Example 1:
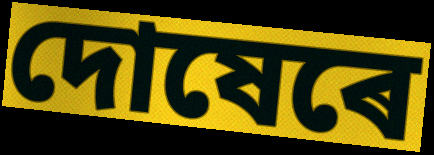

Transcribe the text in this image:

দোষেৰে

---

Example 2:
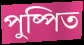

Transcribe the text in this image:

পুষ্পিত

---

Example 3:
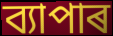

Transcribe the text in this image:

ব্যাপাৰ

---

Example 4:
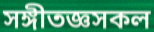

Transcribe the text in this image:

সঙ্গীতজ্ঞসকল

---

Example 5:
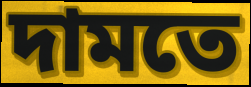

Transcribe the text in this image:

দামতে